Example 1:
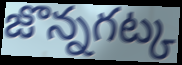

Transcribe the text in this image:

జొన్నగట్క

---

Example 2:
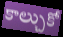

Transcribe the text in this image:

కాల్చుకో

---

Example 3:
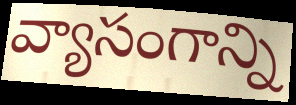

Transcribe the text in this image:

వ్యాసంగాన్ని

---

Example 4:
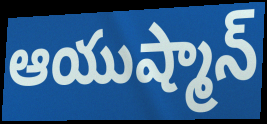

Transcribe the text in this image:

ఆయుష్మాన్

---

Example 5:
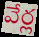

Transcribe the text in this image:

వేర్ల